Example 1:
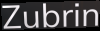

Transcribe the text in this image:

Zubrin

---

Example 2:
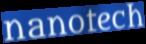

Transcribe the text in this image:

nanotech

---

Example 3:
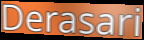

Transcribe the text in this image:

Derasari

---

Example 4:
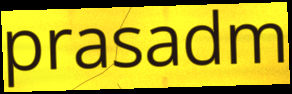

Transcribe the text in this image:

prasadm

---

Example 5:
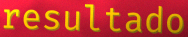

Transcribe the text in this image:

resultado